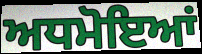
ਅਧਮੋਇਆਂ